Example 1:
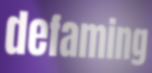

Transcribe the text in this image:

defaming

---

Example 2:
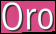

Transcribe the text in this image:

Oro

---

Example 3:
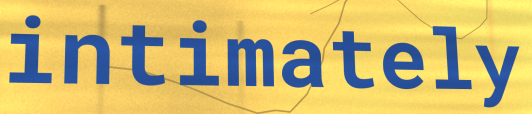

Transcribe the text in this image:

intimately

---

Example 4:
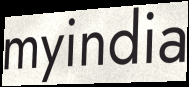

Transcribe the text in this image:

myindia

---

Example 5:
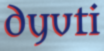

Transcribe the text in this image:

dyuti